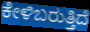
ಕೇಳಿಬರುತ್ತಿದೆ